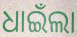
ଧାଇଁଲା